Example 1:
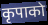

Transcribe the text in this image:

कृपाको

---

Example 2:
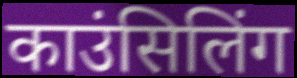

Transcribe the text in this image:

काउंसिलिंग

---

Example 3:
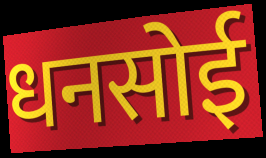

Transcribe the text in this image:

धनसोई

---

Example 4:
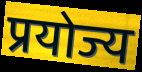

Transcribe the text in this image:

प्रयोज्य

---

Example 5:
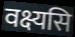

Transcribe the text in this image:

वक्ष्यसि